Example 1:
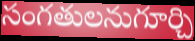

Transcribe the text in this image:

సంగతులనుగూర్చి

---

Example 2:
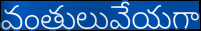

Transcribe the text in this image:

వంతులువేయగా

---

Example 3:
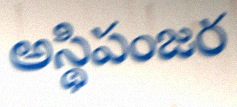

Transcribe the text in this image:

అస్థిపంజర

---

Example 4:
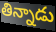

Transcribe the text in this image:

తిన్నాడు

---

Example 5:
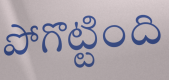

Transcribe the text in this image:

పోగొట్టింది